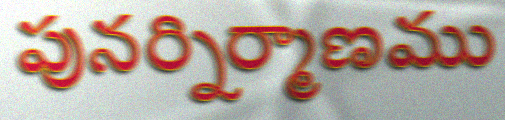
పునర్నిర్మాణము